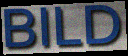
BILD